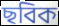
ছবিক